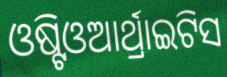
ଓଷ୍ଟିଓଆର୍ଥ୍ରାଇଟିସ